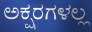
ಅಕ್ಷರಗಳಲ್ಲ